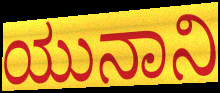
ಯುನಾನಿ